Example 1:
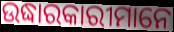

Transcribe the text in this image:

ଉଦ୍ଧାରକାରୀମାନେ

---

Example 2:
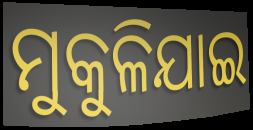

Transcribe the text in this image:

ମୁକୁଳିଯାଇ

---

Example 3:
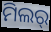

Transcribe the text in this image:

ମିଲର୍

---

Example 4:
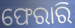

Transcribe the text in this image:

ଫେରାରି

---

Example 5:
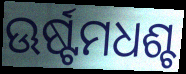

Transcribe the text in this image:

ଊର୍ଷ୍ଟମଧଶ୍ଚ